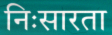
निःसारता